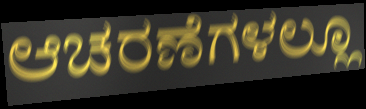
ಆಚರಣೆಗಳಲ್ಲೂ